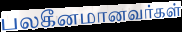
பலகீனமானவர்கள்